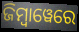
ଜିମ୍ୱାୱେରେ